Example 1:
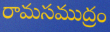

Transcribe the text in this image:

రామసముద్రం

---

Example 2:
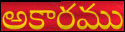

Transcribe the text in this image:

అకారము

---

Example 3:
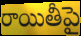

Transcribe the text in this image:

రాయితీపై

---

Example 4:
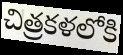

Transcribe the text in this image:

చిత్రకళలోకి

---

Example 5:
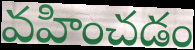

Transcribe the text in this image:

వహించడం